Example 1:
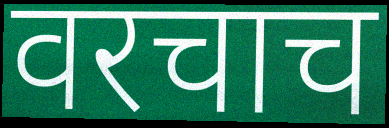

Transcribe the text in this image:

वरचाच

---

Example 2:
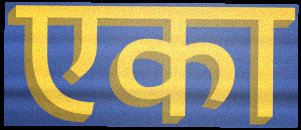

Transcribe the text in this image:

एका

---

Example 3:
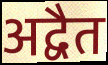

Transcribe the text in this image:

अद्वैत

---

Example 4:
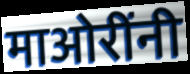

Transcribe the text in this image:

माओरींनी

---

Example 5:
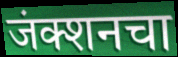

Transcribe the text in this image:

जंक्शनचा